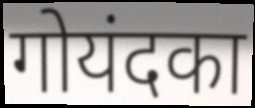
गोयंदका